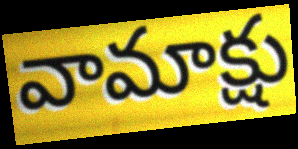
వామాక్షు